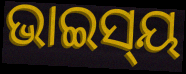
ଭାଇସ୍‌ୟ